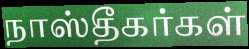
நாஸ்தீகர்கள்